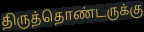
திருத்தொண்டருக்கு